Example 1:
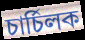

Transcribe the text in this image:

চাৰ্চিলক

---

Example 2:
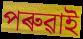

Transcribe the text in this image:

পৰুৱাই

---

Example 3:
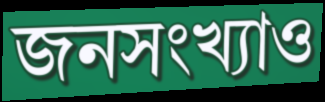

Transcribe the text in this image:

জনসংখ্যাও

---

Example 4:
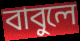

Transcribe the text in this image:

বাবুলে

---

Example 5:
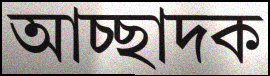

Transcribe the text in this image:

আচ্ছাদক